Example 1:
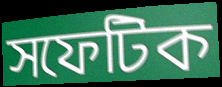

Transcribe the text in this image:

সফেটিক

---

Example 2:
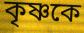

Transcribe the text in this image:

কৃষ্ণকে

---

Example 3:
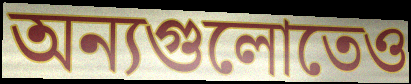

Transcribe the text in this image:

অন্যগুলোতেও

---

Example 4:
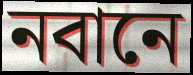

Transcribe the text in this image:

নবানে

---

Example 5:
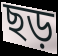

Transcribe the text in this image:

ছড়